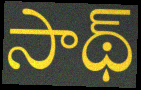
సాథ్